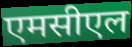
एमसीएल